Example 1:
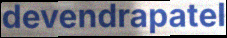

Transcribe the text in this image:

devendrapatel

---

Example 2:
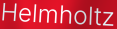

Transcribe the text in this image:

Helmholtz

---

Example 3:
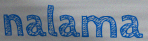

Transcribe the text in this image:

nalama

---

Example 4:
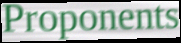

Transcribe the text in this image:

Proponents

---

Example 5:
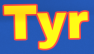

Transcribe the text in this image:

Tyr